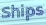
Ships